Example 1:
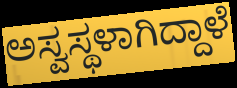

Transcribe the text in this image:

ಅಸ್ವಸ್ಥಳಾಗಿದ್ದಾಳೆ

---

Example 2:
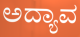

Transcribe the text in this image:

ಅದ್ಯಾವ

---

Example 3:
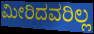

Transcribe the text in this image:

ಮೀರಿದವರಿಲ್ಲ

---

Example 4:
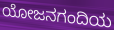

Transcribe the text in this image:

ಯೋಜನಗಂದಿಯ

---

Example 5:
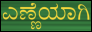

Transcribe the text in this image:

ಎಣ್ಣೆಯಾಗಿ